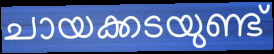
ചായക്കടയുണ്ട്